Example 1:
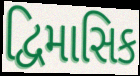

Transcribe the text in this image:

દ્વિમાસિક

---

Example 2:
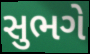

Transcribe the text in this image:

સુભગે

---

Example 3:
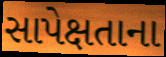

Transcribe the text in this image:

સાપેક્ષતાના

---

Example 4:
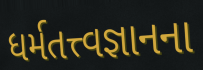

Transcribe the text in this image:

ધર્મતત્ત્વજ્ઞાનના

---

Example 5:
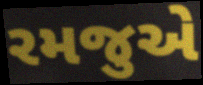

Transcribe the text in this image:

રમજુએ